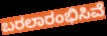
ಬರಲಾರಂಭಿಸಿವೆ